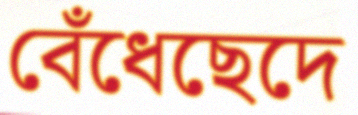
বেঁধেছেদে